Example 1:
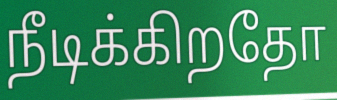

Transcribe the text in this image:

நீடிக்கிறதோ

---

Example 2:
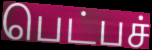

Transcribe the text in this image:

பெட்பச்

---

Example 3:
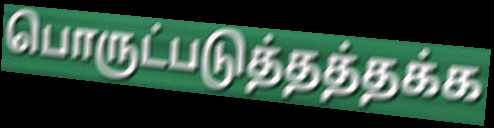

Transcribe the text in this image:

பொருட்படுத்தத்தக்க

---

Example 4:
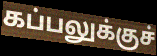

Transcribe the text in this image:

கப்பலுக்குச்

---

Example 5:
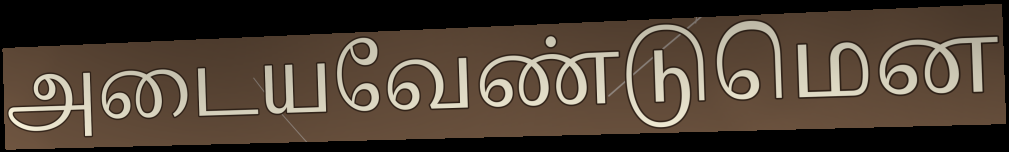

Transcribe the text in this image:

அடையவேண்டுமென